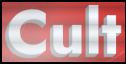
Cult